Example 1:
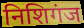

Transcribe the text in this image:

निशिगंज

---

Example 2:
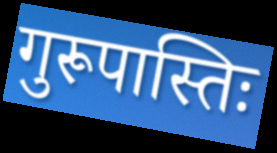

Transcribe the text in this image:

गुरूपास्तिः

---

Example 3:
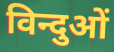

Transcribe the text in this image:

विन्दुओं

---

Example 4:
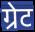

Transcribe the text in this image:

ग्रेट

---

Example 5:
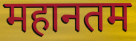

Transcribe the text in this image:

महानतम